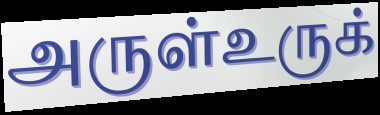
அருள்உருக்